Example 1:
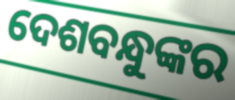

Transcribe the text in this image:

ଦେଶବନ୍ଧୁଙ୍କର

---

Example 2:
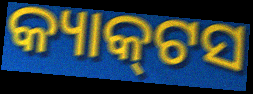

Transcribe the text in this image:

କ୍ୟାକ୍‌ଟସ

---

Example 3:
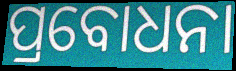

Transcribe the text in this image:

ପ୍ରବୋଧନା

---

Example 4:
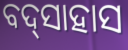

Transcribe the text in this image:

ବଦ୍‌ସାହାସ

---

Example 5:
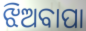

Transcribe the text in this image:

ଝିଅବାପା